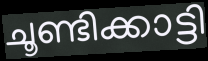
ചൂണ്ടിക്കാട്ടി